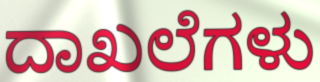
ದಾಖಲೆಗಳು